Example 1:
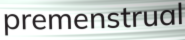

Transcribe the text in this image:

premenstrual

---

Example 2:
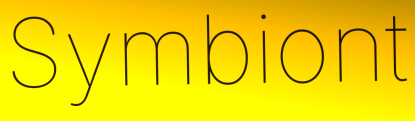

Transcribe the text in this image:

Symbiont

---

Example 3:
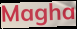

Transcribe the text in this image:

Magha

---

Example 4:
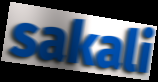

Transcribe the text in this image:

sakali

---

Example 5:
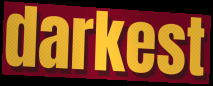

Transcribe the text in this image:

darkest